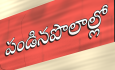
పండినపొలాల్లో